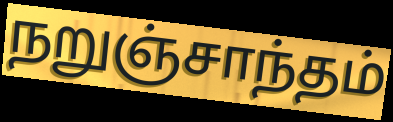
நறுஞ்சாந்தம்